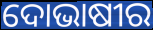
ଦୋଭାଷୀର